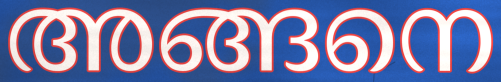
അങ്ങനെ